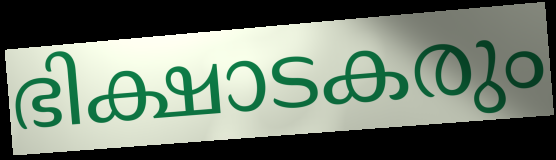
ഭിക്ഷാടകരും